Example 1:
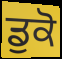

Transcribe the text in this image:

ਡੁਕੋ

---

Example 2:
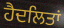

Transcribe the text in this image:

ਹੈਦਲਿਤਾਂ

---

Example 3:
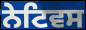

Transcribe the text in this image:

ਨੇਟਿਵਸ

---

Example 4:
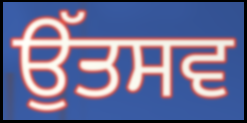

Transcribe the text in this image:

ਉੱਤਸਵ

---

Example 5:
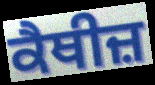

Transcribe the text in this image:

ਕੈਥੀਜ਼